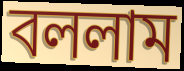
বললাম